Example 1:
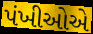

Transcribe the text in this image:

પંખીઓએ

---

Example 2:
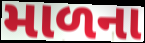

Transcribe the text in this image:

માળના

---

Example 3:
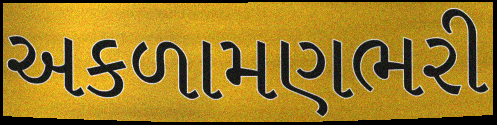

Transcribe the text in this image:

અકળામણભરી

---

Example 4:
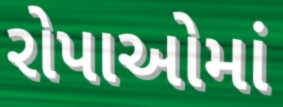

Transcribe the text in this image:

રોપાઓમાં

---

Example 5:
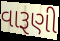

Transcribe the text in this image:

વારૂણી